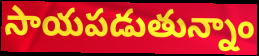
సాయపడుతున్నాం